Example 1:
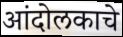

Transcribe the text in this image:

आंदोलकाचे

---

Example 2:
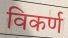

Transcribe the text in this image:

विकर्ण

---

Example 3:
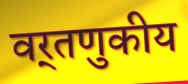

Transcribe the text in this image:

वर्तणुकीय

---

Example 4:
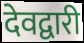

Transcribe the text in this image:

देवद्वारी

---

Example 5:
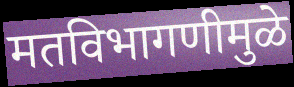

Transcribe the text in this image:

मतविभागणीमुळे